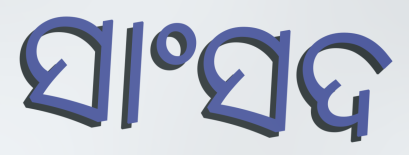
ସାଂସଦ